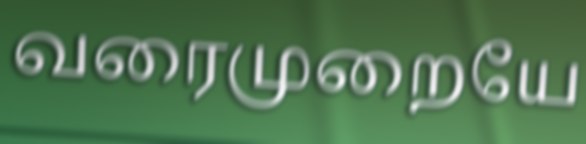
வரைமுறையே